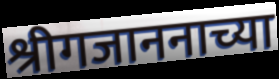
श्रीगजाननाच्या